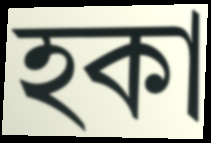
হকা